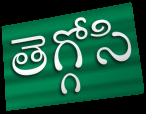
తెగ్గోసి